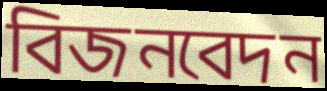
বিজনবেদন